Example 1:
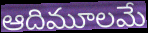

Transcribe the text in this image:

ఆదిమూలమే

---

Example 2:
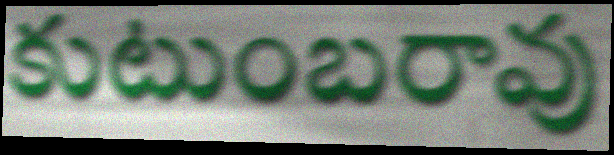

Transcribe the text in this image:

కుటుంబరావు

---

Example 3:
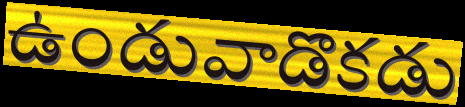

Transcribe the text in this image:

ఉండువాడొకడు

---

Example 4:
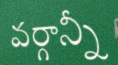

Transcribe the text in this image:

వర్గాన్నీ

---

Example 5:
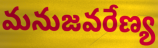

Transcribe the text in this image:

మనుజవరేణ్య